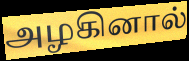
அழகினால்